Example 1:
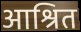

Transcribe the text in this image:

आश्रित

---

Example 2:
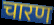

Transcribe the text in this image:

चारण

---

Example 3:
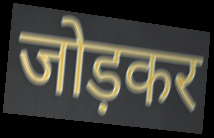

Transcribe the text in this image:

जोड़कर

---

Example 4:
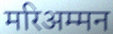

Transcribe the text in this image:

मरिअम्मन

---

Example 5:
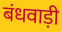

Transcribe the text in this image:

बंधवाड़ी